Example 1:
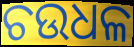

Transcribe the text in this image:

ଚଉଧଳ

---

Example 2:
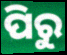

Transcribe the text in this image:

ପିରୁ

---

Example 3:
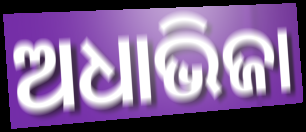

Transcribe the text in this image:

ଅଧାଭିଜା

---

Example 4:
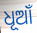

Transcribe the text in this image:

ଧୂଆଁ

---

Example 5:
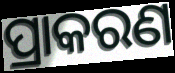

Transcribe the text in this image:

ପ୍ରାକରଣ